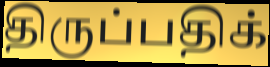
திருப்பதிக்